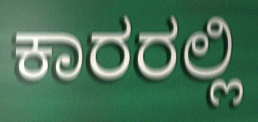
ಕಾರರಲ್ಲಿ